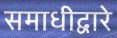
समाधीद्वारे